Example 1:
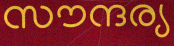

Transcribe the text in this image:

സൗന്ദര്യ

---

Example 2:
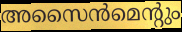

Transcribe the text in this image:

അസൈൻമെന്റും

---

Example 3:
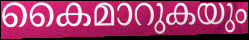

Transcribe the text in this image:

കൈമാറുകയും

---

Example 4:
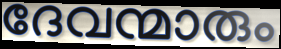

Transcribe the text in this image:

ദേവന്മാരും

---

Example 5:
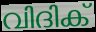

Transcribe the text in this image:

വിദിക്